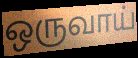
ஒருவாய்